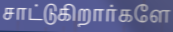
சாட்டுகிறார்களே